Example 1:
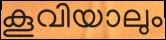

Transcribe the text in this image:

കൂവിയാലും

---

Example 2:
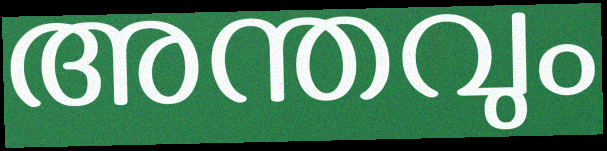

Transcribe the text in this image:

അന്തവും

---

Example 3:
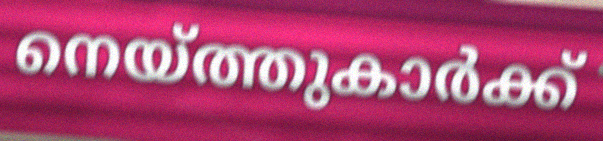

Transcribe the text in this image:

നെയ്ത്തുകാർക്ക്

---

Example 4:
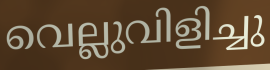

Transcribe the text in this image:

വെല്ലുവിളിച്ചു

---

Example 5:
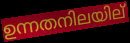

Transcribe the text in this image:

ഉന്നതനിലയില്